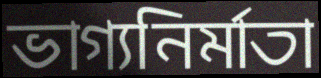
ভাগ্যনির্মাতা